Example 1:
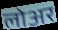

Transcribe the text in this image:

लोअर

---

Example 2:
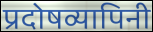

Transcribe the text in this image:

प्रदोषव्यापिनी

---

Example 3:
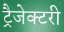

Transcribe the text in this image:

ट्रैजेक्टरी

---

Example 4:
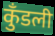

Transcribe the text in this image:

कुँडली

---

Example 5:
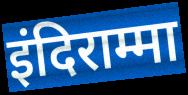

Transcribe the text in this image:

इंदिराम्मा